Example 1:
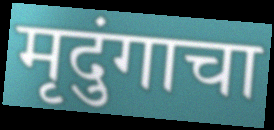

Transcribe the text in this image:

मृदुंगाचा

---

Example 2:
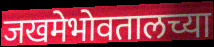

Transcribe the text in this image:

जखमेभोवतालच्या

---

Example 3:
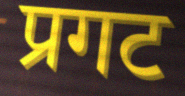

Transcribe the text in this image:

प्रगट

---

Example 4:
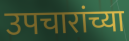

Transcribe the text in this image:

उपचारांच्या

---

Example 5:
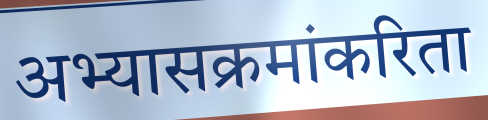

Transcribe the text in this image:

अभ्यासक्रमांकरिता